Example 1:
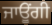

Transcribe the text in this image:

ਜਾਊਂਗੀ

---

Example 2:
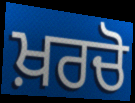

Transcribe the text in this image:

ਖ਼ਰਚੋ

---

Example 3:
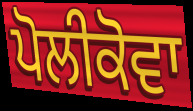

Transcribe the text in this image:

ਪੋਲੀਕੋਵਾ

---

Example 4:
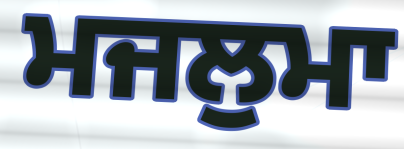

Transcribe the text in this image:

ਮਜਲੁਮਾ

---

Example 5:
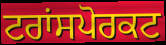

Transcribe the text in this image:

ਟਰਾਂਸਪੋਰਕਟ